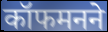
कॉफमनने